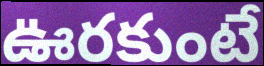
ఊరకుంటే